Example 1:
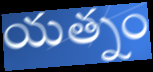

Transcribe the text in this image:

యత్నం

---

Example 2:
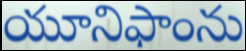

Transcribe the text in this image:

యూనిఫాంను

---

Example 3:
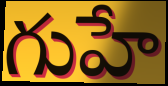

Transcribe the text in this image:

గుహే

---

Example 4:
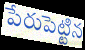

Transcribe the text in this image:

పేరుపెట్టిన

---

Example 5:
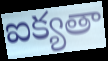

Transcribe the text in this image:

ఐక్యతా